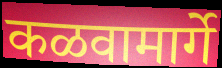
कळवामार्गे